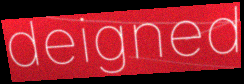
deigned